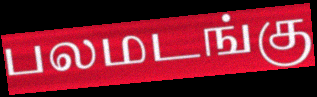
பலமடங்கு